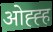
ओह्ह्ह